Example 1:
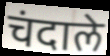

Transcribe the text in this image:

चंदाले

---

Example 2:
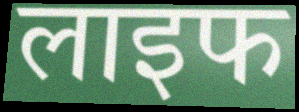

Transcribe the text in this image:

लाइफ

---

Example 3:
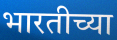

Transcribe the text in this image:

भारतीच्‍या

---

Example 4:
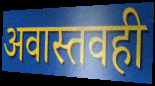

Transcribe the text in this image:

अवास्तवही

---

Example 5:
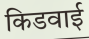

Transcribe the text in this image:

किडवाई